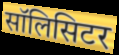
सॉलिसिटर